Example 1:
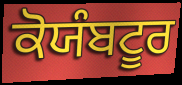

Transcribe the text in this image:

ਕੋਯੰਬਟੂਰ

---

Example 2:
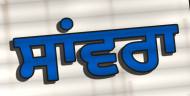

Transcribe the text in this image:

ਸਾਂਵਰਾ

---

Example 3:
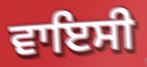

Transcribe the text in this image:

ਵਾਇਸੀ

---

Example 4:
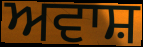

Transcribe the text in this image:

ਅਵਾਸ਼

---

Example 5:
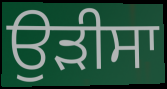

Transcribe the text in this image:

ਉੜੀਸਾ